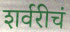
शर्वरीचं